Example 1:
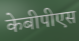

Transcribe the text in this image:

केबीपीएस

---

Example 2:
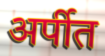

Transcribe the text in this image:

अर्पीत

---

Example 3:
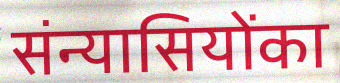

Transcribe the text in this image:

संन्यासियोंका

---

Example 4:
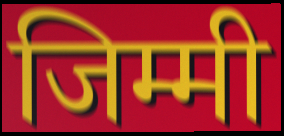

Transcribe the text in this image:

जिम्मी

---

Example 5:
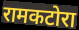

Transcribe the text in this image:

रामकटोरा